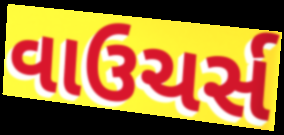
વાઉચર્સ